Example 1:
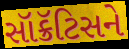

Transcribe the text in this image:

સૉક્રૅટિસને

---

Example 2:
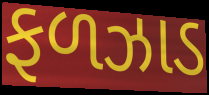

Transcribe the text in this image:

ફળઝાડ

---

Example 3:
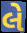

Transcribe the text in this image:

લે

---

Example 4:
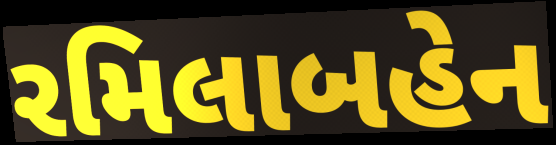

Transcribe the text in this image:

રમિલાબહેન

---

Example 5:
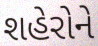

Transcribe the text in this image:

શહેરોને